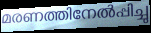
മരണത്തിനേൽപ്പിച്ചു